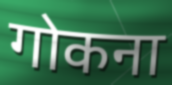
गोकना